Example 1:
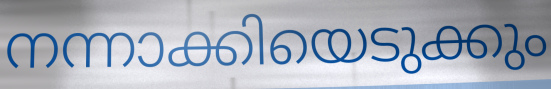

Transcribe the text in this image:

നന്നാക്കിയെടുക്കും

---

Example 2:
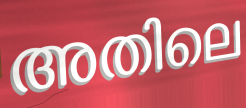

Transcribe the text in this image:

അതിലെ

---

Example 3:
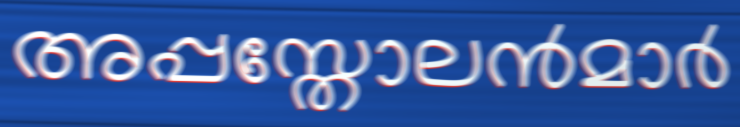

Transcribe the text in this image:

അപ്പസ്തോലൻമാർ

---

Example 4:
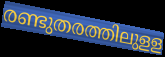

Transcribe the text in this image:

രണ്ടുതരത്തിലുളള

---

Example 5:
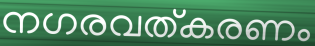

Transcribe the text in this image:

നഗരവത്കരണം